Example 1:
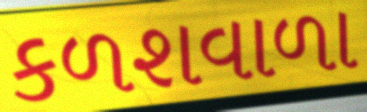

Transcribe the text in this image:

કળશવાળા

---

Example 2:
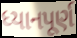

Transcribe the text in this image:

ધ્યાનપૂર્ણ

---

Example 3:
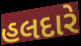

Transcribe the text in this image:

હલદારે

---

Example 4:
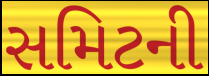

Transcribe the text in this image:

સમિટની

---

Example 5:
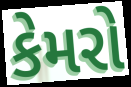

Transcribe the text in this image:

કેમરો